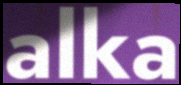
alka